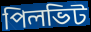
পিলভিট